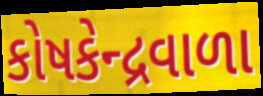
કોષકેન્દ્રવાળા